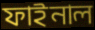
ফাইনাল